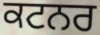
ਕਟਨਰ